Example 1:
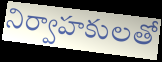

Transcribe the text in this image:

నిర్వాహకులతో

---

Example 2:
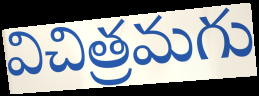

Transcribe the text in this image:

విచిత్రమగు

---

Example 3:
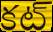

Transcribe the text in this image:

కట్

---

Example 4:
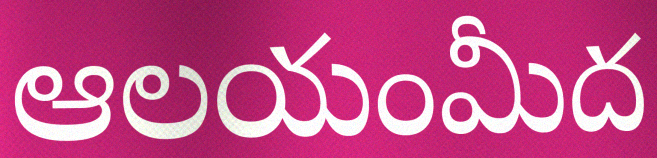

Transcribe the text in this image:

ఆలయంమీద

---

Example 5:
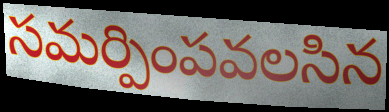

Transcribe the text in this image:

సమర్పింపవలసిన